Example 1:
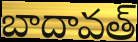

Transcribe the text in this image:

బాదావత్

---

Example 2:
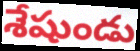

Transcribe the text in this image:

శేషుండు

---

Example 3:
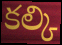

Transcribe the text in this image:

కల్కి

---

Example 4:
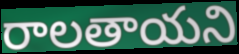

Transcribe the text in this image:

రాలతాయని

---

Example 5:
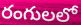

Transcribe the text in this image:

రంగులలో